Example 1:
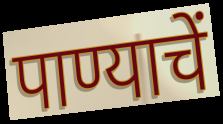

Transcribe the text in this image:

पाण्याचें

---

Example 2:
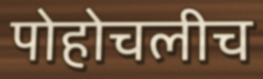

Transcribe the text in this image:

पोहोचलीच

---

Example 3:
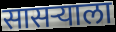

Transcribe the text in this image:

सासर्‍याला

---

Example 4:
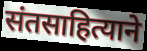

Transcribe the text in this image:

संतसाहित्याने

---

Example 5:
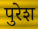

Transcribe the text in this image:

पुरेश